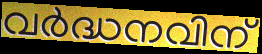
വർദ്ധനവിന്